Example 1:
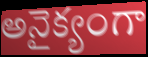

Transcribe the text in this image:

అనైక్యంగా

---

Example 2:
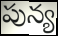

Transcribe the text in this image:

పున్య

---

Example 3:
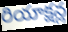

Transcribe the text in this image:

రియాక్షన్ల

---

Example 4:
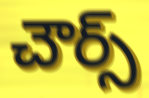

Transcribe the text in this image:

చౌర్స్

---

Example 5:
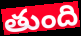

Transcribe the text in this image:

తుంది